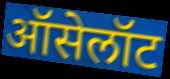
ऑसेलॉट